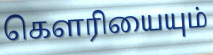
கௌரியையும்